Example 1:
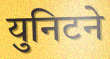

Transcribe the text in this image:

युनिटने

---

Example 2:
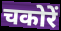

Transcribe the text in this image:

चकोरें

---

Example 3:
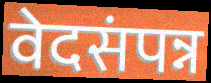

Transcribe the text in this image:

वेदसंपन्न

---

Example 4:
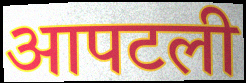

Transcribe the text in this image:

आपटली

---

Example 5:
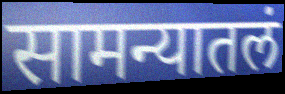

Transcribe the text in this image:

सामन्यातलं